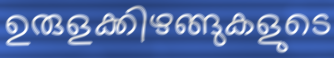
ഉരുളക്കിഴങ്ങുകളുടെ